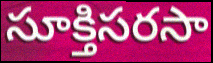
సూక్తిసరసా